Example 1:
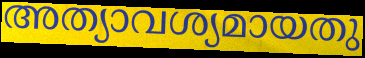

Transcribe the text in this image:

അത്യാവശ്യമായതു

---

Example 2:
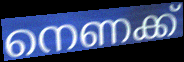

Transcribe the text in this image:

നെണക്ക്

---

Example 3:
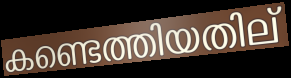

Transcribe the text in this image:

കണ്ടെത്തിയതില്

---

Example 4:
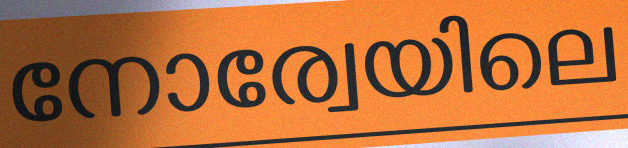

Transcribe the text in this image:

നോര്വേയിലെ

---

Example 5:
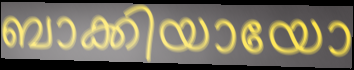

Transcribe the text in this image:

ബാക്കിയായോ